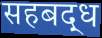
सहबद्ध